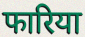
फारिया